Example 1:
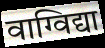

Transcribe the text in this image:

वाग्विद्या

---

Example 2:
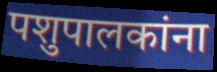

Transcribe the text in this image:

पशुपालकांना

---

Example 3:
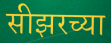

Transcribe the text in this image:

सीझरच्या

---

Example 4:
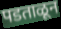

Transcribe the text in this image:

पडताळून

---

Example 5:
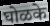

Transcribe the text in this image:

घोळके